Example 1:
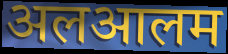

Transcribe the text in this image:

अलआलम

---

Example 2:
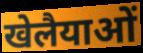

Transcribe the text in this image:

खेलैयाओं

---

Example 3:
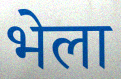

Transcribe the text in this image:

भेला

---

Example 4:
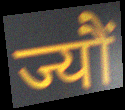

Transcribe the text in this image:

ज्यौं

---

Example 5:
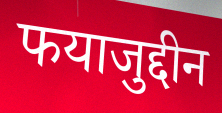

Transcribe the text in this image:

फयाजुद्दीन